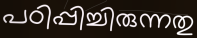
പഠിപ്പിച്ചിരുന്നതു